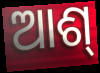
ଆଶ୍